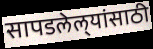
सापडलेल्यांसाठी